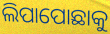
ଲିପାପୋଛାକୁ